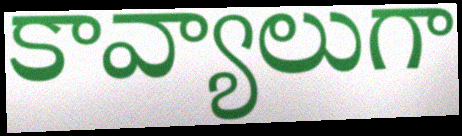
కావ్యాలుగా